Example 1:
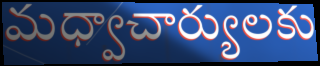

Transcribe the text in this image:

మధ్వాచార్యులకు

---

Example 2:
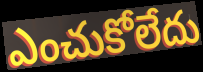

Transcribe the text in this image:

ఎంచుకోలేదు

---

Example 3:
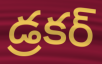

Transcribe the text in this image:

డ్రకర్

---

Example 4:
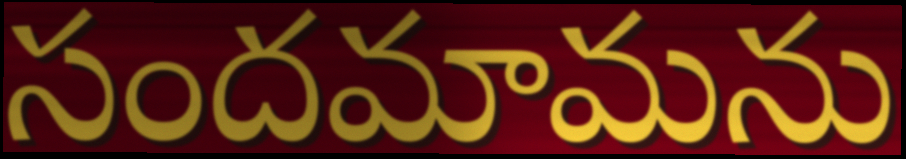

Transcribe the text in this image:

సందమామను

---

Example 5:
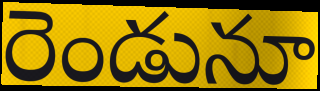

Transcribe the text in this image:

రెండునూ